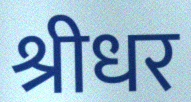
श्रीधर